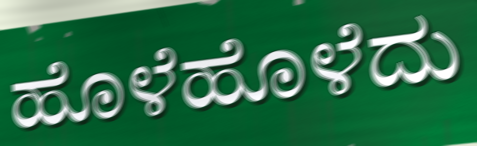
ಹೊಳೆಹೊಳೆದು